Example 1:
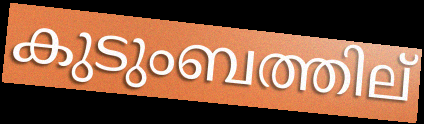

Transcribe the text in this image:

കുടുംബത്തില്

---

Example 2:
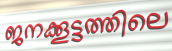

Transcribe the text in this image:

ജനക്കൂട്ടത്തിലെ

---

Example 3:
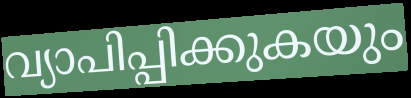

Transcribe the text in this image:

വ്യാപിപ്പിക്കുകയും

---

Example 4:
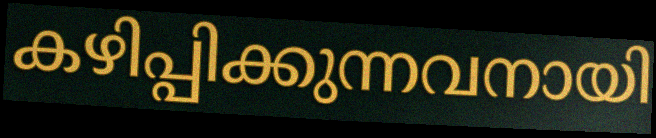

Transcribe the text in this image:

കഴിപ്പിക്കുന്നവനായി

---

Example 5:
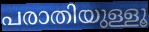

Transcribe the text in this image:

പരാതിയുള്ളൂ